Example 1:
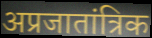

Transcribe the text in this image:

अप्रजातांत्रिक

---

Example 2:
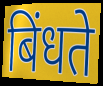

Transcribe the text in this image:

बिंधते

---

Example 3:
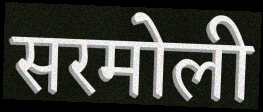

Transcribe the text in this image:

सरमोली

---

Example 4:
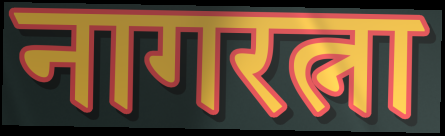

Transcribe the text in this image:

नागरत्ना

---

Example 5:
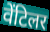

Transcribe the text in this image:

वेंटिलर